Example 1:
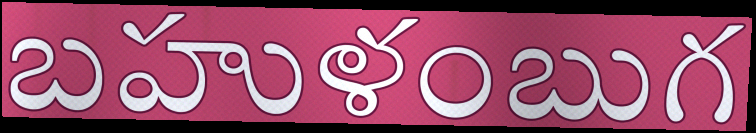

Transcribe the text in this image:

బహుళంబుగ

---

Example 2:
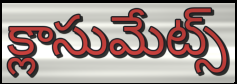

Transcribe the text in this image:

క్లాసుమేట్స్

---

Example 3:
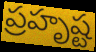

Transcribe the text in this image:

ప్రహృష్ట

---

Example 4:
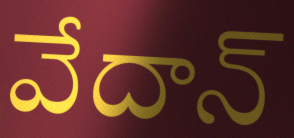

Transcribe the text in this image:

వేదాన్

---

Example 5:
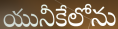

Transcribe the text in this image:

యునీకేలోను